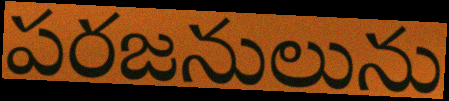
పరజనులును